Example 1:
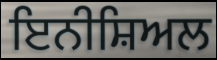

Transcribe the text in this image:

ਇਨੀਸ਼ਿਅਲ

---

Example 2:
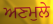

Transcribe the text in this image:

ਅਣਮੁਲੇ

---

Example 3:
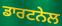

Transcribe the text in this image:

ਡਾਰਟਨੇਲ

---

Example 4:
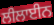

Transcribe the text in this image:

ਲੀਲਾਈਨ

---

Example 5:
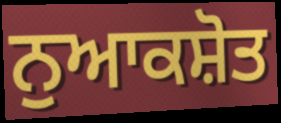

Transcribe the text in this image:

ਨੁਆਕਸ਼ੋਤ